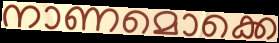
നാണമൊക്കെ